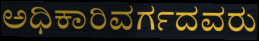
ಅಧಿಕಾರಿವರ್ಗದವರು